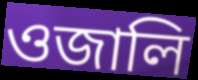
ওজালি